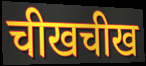
चीखचीख